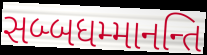
સબ્બધમ્માનન્તિ